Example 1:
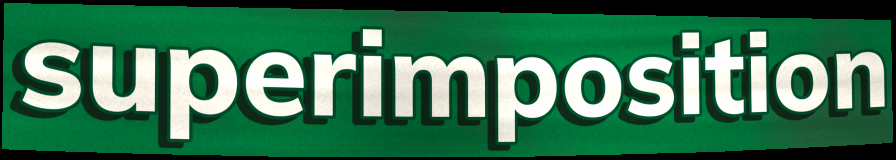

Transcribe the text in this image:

superimposition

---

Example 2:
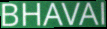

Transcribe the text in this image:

BHAVAI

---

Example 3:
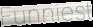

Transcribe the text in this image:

Funniest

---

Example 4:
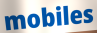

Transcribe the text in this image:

mobiles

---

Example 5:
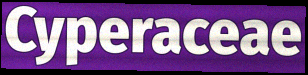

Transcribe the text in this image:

Cyperaceae